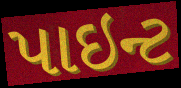
પાઇન્ટ